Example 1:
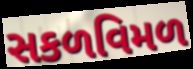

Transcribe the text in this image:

સકળવિમળ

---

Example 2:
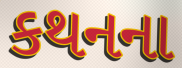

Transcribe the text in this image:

કથનના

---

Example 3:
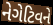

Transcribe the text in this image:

નેગેટિવને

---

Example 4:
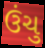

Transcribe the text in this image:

ઉંચુ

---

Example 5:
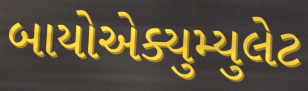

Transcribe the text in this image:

બાયોએક્યુમ્યુલેટ